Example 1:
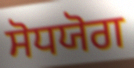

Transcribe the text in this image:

ਸੋਧਯੋਗ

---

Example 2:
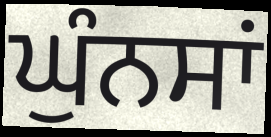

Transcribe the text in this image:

ਘੁੰਨਸਾਂ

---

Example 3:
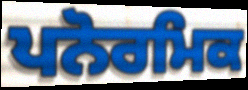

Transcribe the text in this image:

ਪਨੋਰਮਿਕ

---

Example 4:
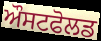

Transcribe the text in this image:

ਔਸਟਫੋਲਡ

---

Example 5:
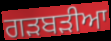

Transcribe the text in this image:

ਗੜਬੜੀਆ